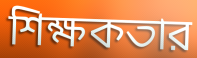
শিক্ষকতার